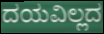
ದಯವಿಲ್ಲದ